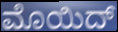
ಮೊಯಿದ್